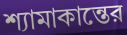
শ্যামাকান্তের